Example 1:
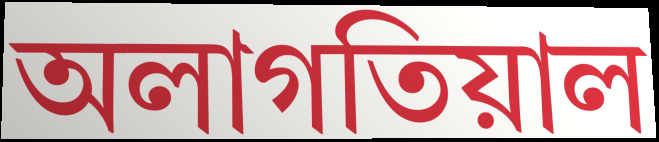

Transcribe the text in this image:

অলাগতিয়াল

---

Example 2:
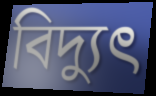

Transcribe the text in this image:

বিদ্যুৎ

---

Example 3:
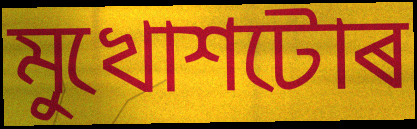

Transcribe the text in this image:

মুখোশটোৰ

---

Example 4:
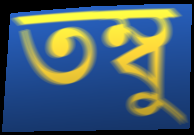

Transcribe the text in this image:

তম্বু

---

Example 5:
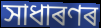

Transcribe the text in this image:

সাধাৰণৰ